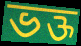
ভক্ত